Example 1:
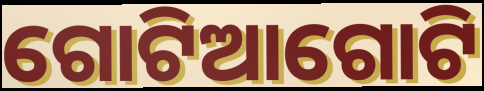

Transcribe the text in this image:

ଗୋଟିଆଗୋଟି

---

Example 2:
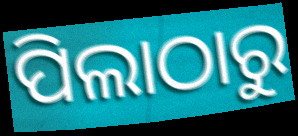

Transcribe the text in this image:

ପିଲାଠାରୁ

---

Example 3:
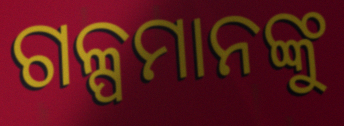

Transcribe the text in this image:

ଗଳ୍ପମାନଙ୍କୁ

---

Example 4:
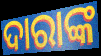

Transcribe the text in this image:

ଦାରାଙ୍କ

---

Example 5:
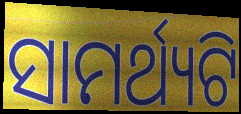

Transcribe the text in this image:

ସାମର୍ଥ୍ୟଟି